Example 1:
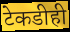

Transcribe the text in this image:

टेकडीही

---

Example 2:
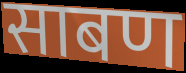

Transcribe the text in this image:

साबण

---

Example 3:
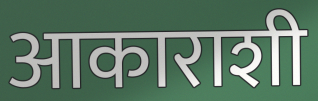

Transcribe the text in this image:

आकाराशी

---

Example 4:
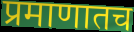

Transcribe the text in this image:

प्रमाणातच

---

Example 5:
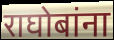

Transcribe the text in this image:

राघोबांना